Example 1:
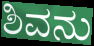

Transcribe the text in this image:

ಶಿವನು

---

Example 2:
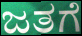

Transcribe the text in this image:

ಜತಗೆ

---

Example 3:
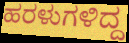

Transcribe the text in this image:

ಹರಳುಗಳಿದ್ದ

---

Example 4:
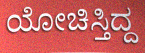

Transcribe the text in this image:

ಯೋಚಿಸ್ತಿದ್ದ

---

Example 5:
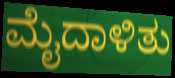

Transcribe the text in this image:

ಮೈದಾಳಿತು